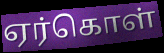
ஏர்கொள்